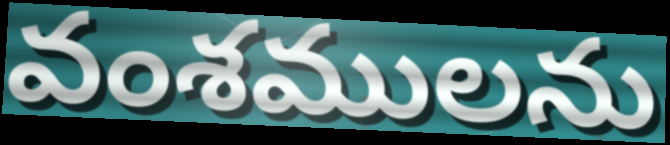
వంశములను